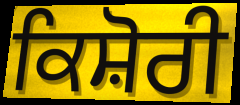
ਕਿਸ਼ੋਰੀ